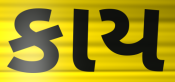
કાય